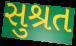
સુશ્રત